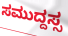
ಸಮುದ್ದಸ್ಸ